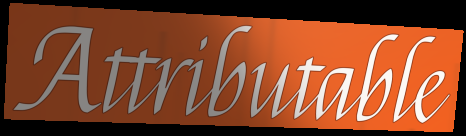
Attributable